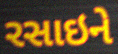
રસાઇને